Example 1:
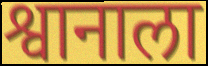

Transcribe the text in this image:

श्वानाला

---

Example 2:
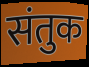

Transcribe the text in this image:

संतुक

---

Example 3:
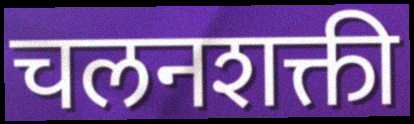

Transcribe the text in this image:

चलनशक्ती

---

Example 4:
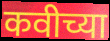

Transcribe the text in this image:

कवीच्या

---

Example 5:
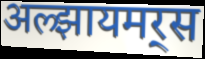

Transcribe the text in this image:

अल्झायमर्स